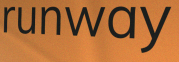
runway